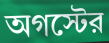
অগস্টের